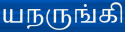
யநருங்கி